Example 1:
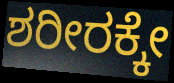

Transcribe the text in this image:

ಶರೀರಕ್ಕೇ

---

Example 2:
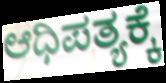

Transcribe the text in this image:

ಆಧಿಪತ್ಯಕ್ಕೆ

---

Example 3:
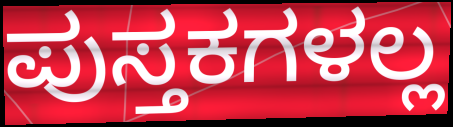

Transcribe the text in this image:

ಪುಸ್ತಕಗಳಲ್ಲ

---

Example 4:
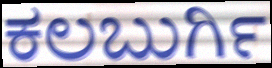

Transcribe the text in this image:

ಕಲಬುರ್ಗಿ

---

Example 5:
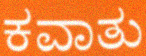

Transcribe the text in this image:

ಕವಾತು